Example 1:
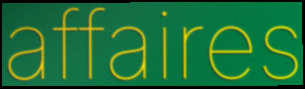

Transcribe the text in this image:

affaires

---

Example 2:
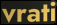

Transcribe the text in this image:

vrati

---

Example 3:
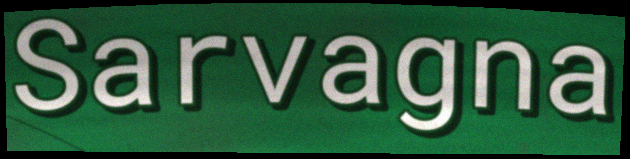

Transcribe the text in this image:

Sarvagna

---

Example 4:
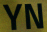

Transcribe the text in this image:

YN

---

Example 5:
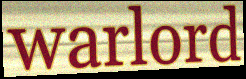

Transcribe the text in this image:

warlord